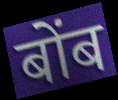
बोंब